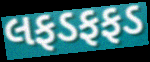
લફડફફડ